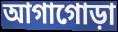
আগাগোড়া